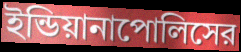
ইন্ডিয়ানাপোলিসের